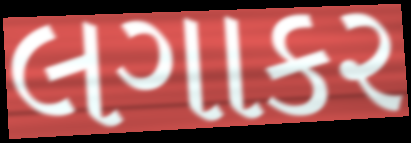
લગાકર